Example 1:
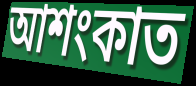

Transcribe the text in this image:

আশংকাত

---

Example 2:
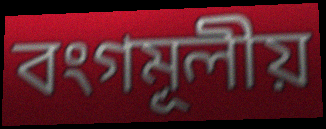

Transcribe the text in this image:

বংগমূলীয়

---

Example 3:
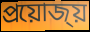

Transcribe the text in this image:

প্ৰয়োজ্য়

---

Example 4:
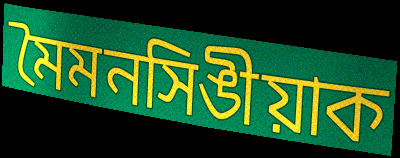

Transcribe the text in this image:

মৈমনসিঙীয়াক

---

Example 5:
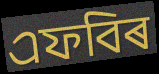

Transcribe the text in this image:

এফবিৰ